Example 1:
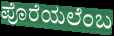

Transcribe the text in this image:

ಪೊರೆಯಲೆಂಬ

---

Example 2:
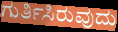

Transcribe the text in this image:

ಗುರ್ತಿಸಿರುವುದು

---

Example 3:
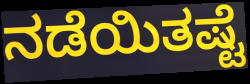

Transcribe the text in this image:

ನಡೆಯಿತಷ್ಟೆ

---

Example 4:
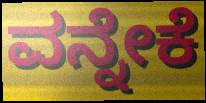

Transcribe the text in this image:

ವನ್ನೇಕೆ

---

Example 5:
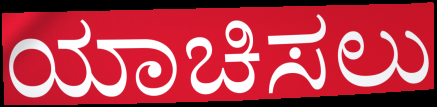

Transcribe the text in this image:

ಯಾಚಿಸಲು